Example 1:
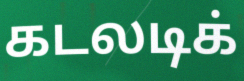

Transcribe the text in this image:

கடலடிக்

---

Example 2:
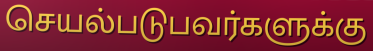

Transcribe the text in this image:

செயல்படுபவர்களுக்கு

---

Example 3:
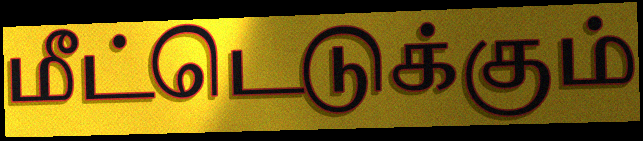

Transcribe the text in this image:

மீட்டெடுக்கும்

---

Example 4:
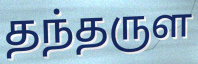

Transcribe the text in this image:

தந்தருள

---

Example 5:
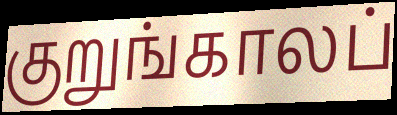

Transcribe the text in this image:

குறுங்காலப்